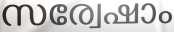
സര്വേഷാം